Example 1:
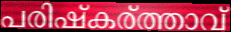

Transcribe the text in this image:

പരിഷ്കര്ത്താവ്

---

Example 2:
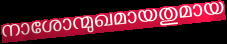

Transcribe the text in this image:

നാശോന്മുഖമായതുമായ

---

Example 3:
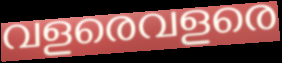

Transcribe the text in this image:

വളരെവളരെ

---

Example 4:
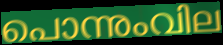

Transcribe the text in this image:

പൊന്നുംവില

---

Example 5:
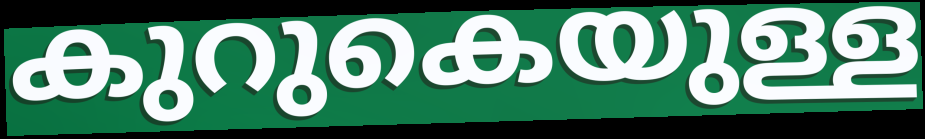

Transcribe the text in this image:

കുറുകെയുള്ള